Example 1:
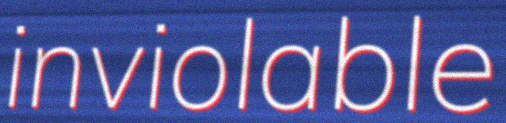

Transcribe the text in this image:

inviolable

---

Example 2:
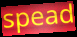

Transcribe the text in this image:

spead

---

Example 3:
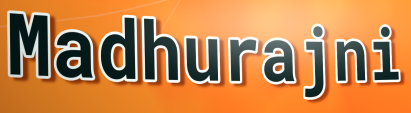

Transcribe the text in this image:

Madhurajni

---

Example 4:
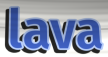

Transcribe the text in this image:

lava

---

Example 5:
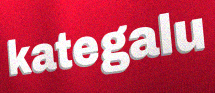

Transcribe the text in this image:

kategalu